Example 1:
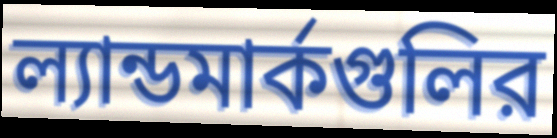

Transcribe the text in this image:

ল্যান্ডমার্কগুলির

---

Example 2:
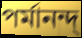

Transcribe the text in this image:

পর্মানন্দ্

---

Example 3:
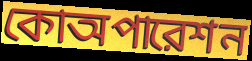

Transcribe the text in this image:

কোঅপারেশন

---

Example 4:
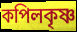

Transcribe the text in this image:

কপিলকৃষ্ণ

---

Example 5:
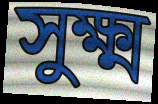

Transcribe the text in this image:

সুক্ষ্ম